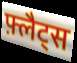
फ़्लैट्स